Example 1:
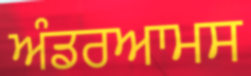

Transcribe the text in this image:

ਅੰਡਰਆਮਸ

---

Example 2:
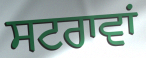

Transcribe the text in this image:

ਸਟਰਾਵਾਂ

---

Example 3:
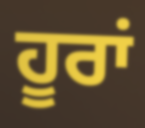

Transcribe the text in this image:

ਹੂਰਾਂ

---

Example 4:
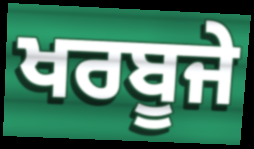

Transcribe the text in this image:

ਖਰਬੂਜੇ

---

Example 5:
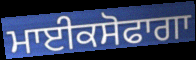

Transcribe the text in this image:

ਮਾਈਕਸੋਫਾਗਾ